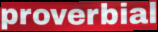
proverbial